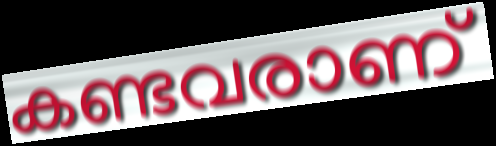
കണ്ടവരാണ്